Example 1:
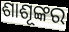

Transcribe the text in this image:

ଶାଶୂଙ୍କର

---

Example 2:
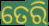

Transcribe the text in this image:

ତେରି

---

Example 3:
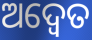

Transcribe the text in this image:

ଅଦ୍ଵେତ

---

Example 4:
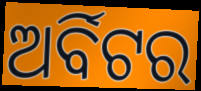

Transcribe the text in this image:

ଅର୍ବିଟର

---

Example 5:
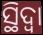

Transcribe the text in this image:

ସ୍ଥିଦ୍ଵା